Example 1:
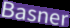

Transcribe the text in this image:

Basner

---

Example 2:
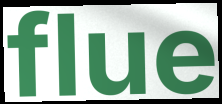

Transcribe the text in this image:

flue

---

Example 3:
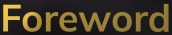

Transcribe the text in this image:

Foreword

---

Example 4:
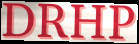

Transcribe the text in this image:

DRHP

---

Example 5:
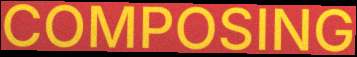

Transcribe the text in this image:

COMPOSING